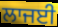
ਲਾਜਈ